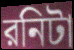
রনিটা